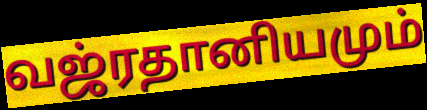
வஜ்ரதானியமும்